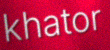
khator